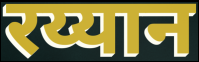
रय्यान